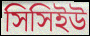
সিসিইউ